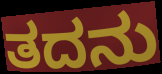
ತದನು